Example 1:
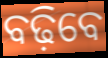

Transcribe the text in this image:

ବଢ଼ିବେ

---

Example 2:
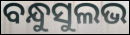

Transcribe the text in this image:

ବନ୍ଧୁସୁଲଭ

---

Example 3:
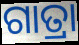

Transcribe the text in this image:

ଗାତ୍ରା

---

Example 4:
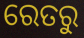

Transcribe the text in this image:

ରେତରୁ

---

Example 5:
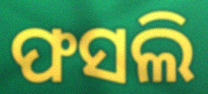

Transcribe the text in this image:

ଫସଲି